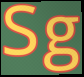
Sg